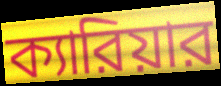
ক্যারিয়ার